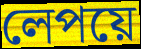
লেপয়ে